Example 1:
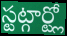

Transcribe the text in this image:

స్టట్గార్ట్లో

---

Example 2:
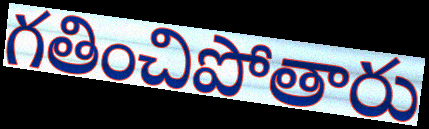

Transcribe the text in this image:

గతించిపోతారు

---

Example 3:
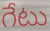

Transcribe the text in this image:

గేటు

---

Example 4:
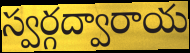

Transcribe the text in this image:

స్వర్గద్వారాయ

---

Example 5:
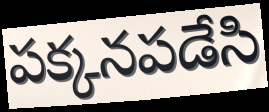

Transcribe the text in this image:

పక్కనపడేసి